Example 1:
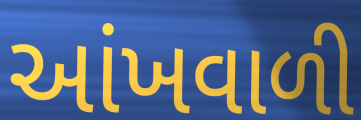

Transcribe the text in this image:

આંખવાળી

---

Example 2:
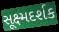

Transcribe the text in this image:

સૂક્ષ્મદર્શક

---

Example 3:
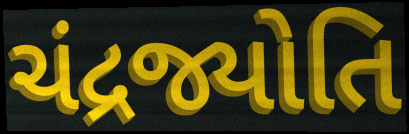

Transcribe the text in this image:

ચંદ્રજ્યોતિ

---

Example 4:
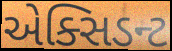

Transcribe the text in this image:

એક્સિડન્ટ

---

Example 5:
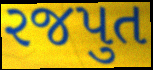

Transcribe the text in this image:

રજપુત